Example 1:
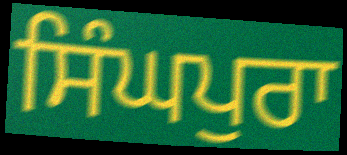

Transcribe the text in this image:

ਸਿੰਘਪੁਰਾ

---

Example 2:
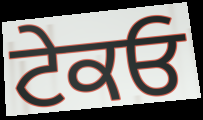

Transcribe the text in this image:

ਟੇਕਓ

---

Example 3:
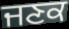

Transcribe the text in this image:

ਜਣਕ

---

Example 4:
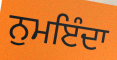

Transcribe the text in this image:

ਨੁਮਇੰਦਾ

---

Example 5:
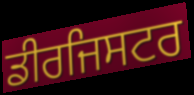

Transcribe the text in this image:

ਡੀਰਜਿਸਟਰ